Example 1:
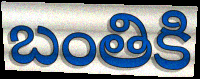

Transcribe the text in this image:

బంతికి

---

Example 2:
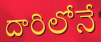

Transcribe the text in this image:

దారిలోనే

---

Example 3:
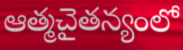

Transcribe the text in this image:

ఆత్మచైతన్యంలో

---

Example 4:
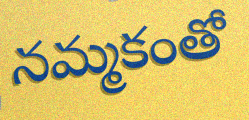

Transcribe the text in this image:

నమ్మకంతో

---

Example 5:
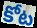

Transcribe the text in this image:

కోట